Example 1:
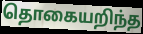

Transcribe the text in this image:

தொகையறிந்த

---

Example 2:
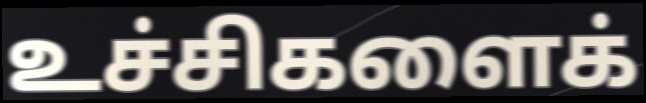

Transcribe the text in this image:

உச்சிகளைக்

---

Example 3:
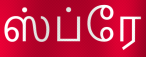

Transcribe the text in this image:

ஸ்ப்ரே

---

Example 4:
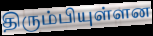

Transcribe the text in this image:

திரும்பியுள்ளன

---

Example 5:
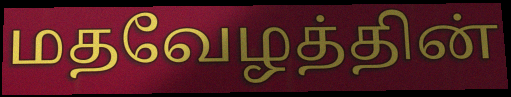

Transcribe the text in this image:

மதவேழத்தின்